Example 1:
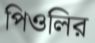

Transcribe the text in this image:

পিওলির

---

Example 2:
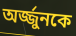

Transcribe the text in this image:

অর্জ্জুনকে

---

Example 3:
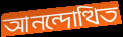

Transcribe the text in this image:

আনন্দোত্থিত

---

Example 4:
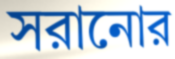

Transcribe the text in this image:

সরানোর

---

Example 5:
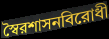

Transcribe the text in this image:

স্বৈরশাসনবিরোধী